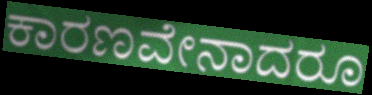
ಕಾರಣವೇನಾದರೂ